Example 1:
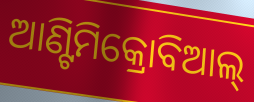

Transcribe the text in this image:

ଆଣ୍ଟିମିକ୍ରୋବିଆଲ୍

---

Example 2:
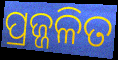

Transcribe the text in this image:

ପ୍ରଜ୍ଜଳିତ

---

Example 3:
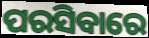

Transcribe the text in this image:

ପରସିବାରେ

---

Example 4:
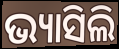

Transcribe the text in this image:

ଭ୍ୟାସିଲି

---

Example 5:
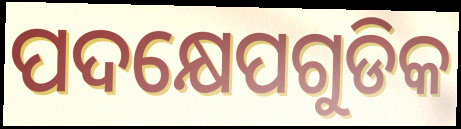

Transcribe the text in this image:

ପଦକ୍ଷେପଗୁଡିକ